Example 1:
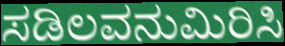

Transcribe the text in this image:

ಸಡಿಲವನುಮಿರಿಸಿ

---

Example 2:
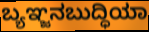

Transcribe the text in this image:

ಬ್ಯಞ್ಜನಬುದ್ಧಿಯಾ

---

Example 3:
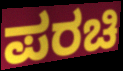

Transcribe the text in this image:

ಪರಚಿ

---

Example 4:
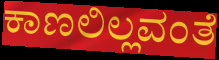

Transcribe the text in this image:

ಕಾಣಲಿಲ್ಲವಂತೆ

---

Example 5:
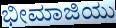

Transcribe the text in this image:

ಭೀಮಾಜಿಯು